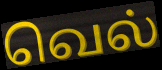
வெல்